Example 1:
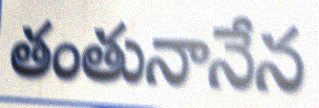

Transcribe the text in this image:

తంతునానేన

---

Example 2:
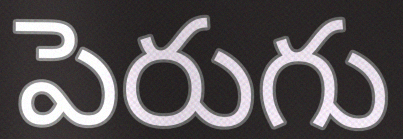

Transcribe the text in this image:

పెరుగు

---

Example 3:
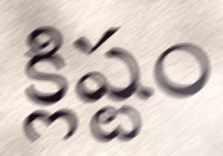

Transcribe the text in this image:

క్లిష్టం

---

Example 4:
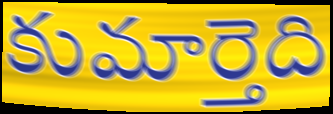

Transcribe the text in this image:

కుమార్తెది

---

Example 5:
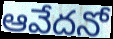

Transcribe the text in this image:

ఆవేదనో